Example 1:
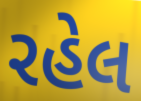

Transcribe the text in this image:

રહેલ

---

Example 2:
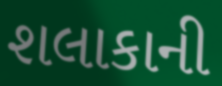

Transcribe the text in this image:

શલાકાની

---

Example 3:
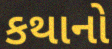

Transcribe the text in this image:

કથાનો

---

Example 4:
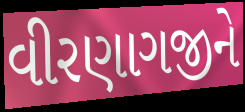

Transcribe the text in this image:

વીરણાગજીને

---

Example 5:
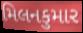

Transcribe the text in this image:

મિલનકુમાર